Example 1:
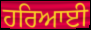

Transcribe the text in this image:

ਹਰਿਆਈ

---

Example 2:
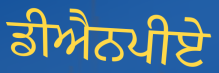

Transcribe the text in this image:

ਡੀਐਨਪੀਏ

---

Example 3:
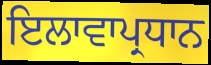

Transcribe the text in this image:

ਇਲਾਵਾਪ੍ਰਧਾਨ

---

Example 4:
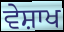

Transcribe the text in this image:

ਵੇਸ਼ਾਖ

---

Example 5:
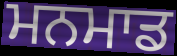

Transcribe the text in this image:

ਮਨਮਾਡ